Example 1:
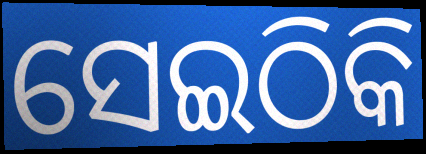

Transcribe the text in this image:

ସେଇଠିକି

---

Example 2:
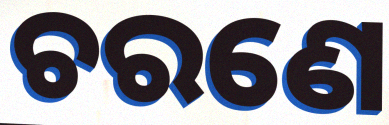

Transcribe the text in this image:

ଚରଣେ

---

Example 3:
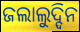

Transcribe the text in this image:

ଜଲାଲୁଦ୍ଦିନ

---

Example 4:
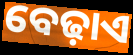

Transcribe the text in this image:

ବେଢ଼ାଏ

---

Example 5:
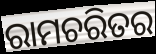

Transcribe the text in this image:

ରାମଚରିତର